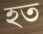
হত